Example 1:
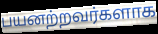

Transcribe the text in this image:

பயனற்றவர்களாக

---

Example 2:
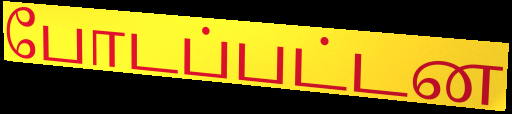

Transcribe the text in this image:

போடப்பட்டன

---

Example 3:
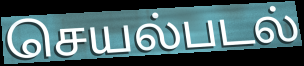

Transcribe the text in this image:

செயல்படல்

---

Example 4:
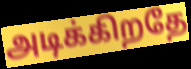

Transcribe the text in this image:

அடிக்கிறதே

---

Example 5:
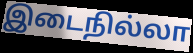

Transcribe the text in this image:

இடைநில்லா